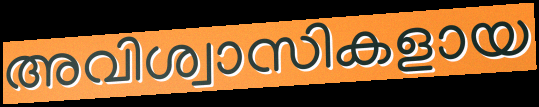
അവിശ്വാസികളായ